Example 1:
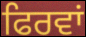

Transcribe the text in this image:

ਫਿਰਵਾਂ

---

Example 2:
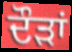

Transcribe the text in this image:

ਦੌੜਾਂ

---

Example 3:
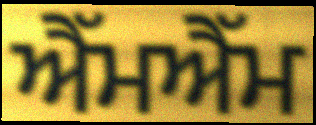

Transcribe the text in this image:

ਐੱਮਐੱਮ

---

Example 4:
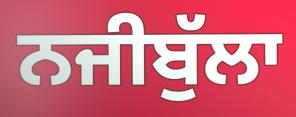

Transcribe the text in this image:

ਨਜੀਬੁੱਲਾ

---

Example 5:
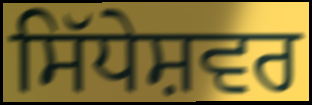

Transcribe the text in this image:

ਸਿੱਧੇਸ਼ਵਰ